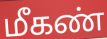
மீகண்